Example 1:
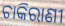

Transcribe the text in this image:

ଚାକିରାଣୀ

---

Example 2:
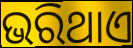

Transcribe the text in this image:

ଭରିଥାଏ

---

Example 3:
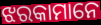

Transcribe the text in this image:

ଝରକାମାନେ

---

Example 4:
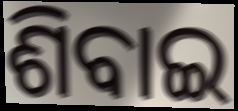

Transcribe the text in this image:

ଶିବାଇ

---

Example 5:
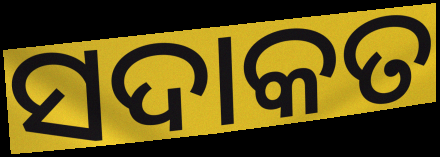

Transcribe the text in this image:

ସଦାକତ